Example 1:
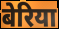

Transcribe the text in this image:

बेरिया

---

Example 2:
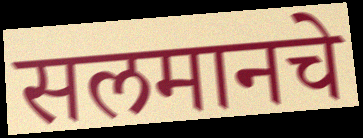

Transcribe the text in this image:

सलमानचे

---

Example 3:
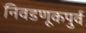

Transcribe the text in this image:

निवडणूकपुर्व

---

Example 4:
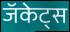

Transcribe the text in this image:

जॅकेट्स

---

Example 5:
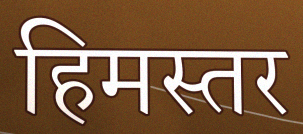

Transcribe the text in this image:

हिमस्तर